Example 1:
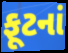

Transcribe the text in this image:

ફૂટનાં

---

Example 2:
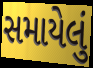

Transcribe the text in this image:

સમાયેલું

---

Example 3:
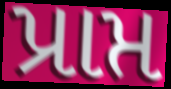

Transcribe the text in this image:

પ્રાપ્ત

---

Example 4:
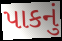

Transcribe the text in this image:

પાકનું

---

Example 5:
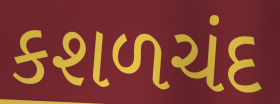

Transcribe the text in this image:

કશળચંદ